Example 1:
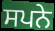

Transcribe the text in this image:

ਸਪਨੇ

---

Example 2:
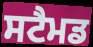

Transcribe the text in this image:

ਸਟੈਮਡ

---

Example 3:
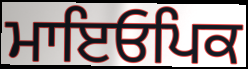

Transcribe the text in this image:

ਮਾਇਓਪਿਕ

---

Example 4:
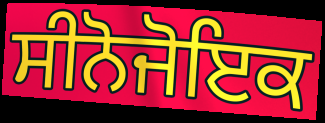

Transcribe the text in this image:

ਸੀਨੋਜੋਇਕ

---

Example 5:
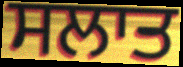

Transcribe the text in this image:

ਸਲਾਤ